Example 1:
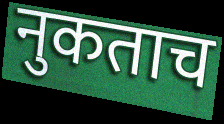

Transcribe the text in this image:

नुकताच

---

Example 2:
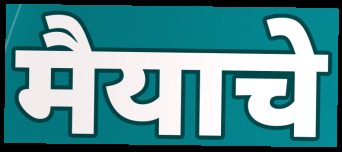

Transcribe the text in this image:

मैयाचे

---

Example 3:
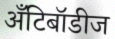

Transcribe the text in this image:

अँटिबॉडीज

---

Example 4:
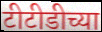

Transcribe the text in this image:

टीटीडीच्या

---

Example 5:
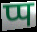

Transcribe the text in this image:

प्प